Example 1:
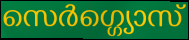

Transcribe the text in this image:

സെർഗ്ഗ്യൊസ്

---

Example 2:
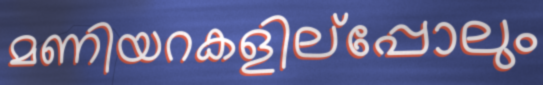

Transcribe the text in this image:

മണിയറകളില്പ്പോലും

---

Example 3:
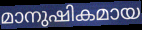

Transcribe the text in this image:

മാനുഷികമായ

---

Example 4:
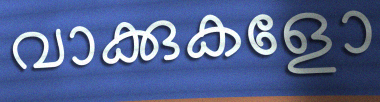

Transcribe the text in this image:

വാക്കുകളോ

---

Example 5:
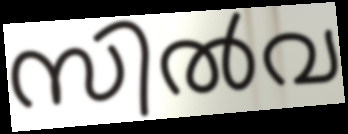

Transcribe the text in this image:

സിൽവ